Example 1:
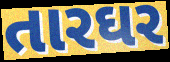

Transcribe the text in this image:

તારઘર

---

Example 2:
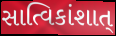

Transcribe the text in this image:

સાત્વિકાંશાત્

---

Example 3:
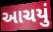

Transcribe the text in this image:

આચયું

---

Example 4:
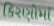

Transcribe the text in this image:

કિરણોમાં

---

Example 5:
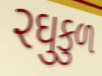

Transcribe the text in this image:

રઘુકુળ